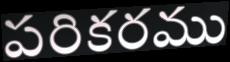
పరికరము